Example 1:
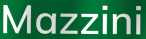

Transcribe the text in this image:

Mazzini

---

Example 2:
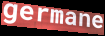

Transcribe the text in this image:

germane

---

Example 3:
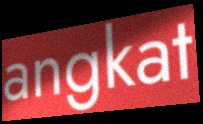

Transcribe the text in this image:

angkat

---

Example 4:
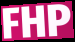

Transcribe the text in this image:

FHP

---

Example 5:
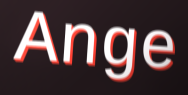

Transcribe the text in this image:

Ange